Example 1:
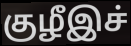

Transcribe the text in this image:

குழீஇச்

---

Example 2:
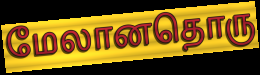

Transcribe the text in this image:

மேலானதொரு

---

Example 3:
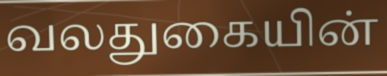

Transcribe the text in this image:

வலதுகையின்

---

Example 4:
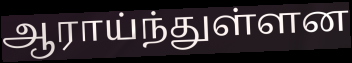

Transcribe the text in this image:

ஆராய்ந்துள்ளன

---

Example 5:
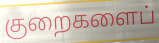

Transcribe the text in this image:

குறைகளைப்